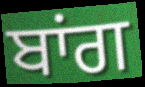
ਬਾਂਗ